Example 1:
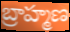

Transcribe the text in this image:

బ్రాహ్మణ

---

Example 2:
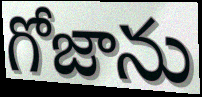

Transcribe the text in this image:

గోజాను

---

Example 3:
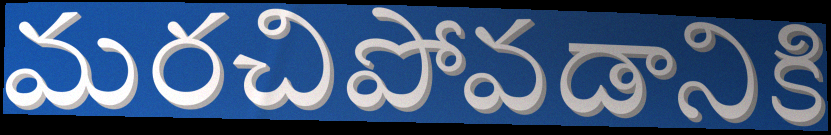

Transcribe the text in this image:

మరచిపోవడానికి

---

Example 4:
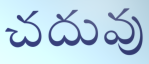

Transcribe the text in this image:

చదువు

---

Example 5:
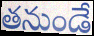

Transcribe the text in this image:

తనుండే